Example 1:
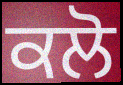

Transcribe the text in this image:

ਕਲੋ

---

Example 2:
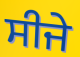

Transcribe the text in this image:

ਸੀਜੇ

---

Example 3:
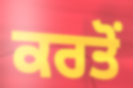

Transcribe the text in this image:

ਕਰਤੋਂ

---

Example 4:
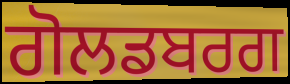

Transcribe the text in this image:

ਗੋਲਡਬਰਗ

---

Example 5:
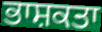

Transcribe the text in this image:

ਭਾਸ਼ਕਤਾ